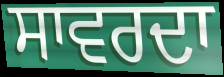
ਸਾਵਰਦਾ